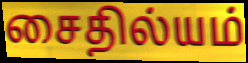
சைதில்யம்